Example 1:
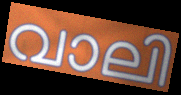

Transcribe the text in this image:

വാലി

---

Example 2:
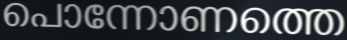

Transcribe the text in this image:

പൊന്നോണത്തെ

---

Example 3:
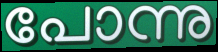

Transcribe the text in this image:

പോന്നു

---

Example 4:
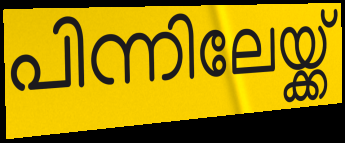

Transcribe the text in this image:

പിന്നിലേയ്ക്ക്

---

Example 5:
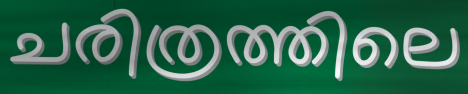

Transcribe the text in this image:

ചരിത്രത്തിലെ